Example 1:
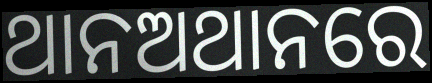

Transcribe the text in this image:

ଥାନଅଥାନରେ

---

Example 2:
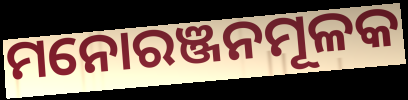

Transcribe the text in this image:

ମନୋରଞ୍ଜନମୂଳକ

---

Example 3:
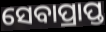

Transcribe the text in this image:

ସେବାପ୍ରାପ୍ତ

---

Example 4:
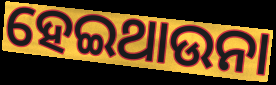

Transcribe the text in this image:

ହେଇଥାଉନା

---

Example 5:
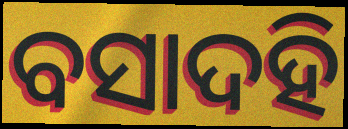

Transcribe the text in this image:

ବସାଦହି